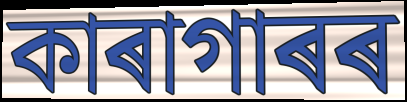
কাৰাগাৰৰ